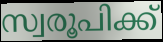
സ്വരൂപിക്ക്